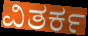
ವಿತರ್ಕ